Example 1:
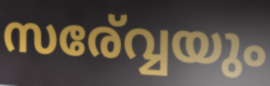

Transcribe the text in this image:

സര്വ്വേയും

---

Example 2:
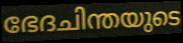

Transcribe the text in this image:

ഭേദചിന്തയുടെ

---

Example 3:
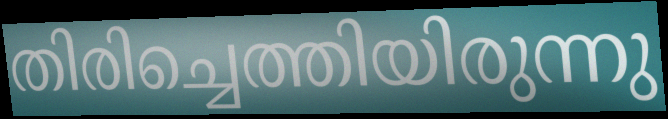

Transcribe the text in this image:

തിരിച്ചെത്തിയിരുന്നു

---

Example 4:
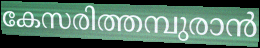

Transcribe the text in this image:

കേസരിത്തമ്പുരാൻ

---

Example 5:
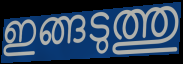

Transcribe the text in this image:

ഇങ്ങടുത്തു